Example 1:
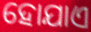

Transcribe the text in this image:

ହୋଯାଏ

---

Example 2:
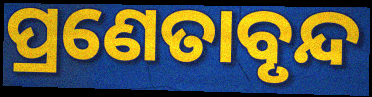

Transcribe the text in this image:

ପ୍ରଣେତାବୃନ୍ଦ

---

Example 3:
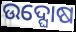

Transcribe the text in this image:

ଉଦ୍ଘୋଷ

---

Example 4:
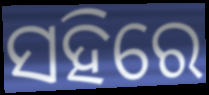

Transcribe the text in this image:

ସହିରେ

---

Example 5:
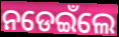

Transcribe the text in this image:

ନଡେଇଁଲେ